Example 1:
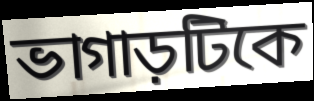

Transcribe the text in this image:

ভাগাড়টিকে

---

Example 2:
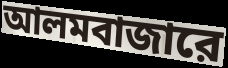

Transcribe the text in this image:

আলমবাজারে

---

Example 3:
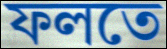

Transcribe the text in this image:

ফলতে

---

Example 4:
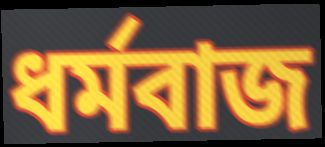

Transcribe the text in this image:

ধর্মবাজ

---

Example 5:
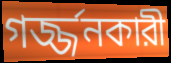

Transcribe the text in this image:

গর্জ্জনকারী